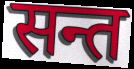
सन्त